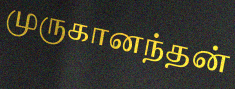
முருகானந்தன்